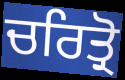
ਚਰਿਤ੍ਰੋ